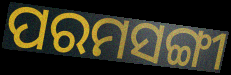
ପରମସଙ୍ଗୀ